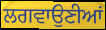
ਲਗਵਾਉਣੀਆਂ